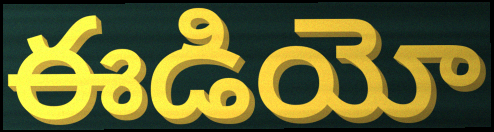
ఈడియో